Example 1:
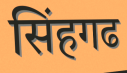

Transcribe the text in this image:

सिंहगढ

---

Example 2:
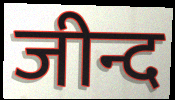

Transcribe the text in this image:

जीन्द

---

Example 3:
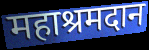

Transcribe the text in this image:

महाश्रमदान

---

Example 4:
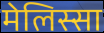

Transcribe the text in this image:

मेलिस्सा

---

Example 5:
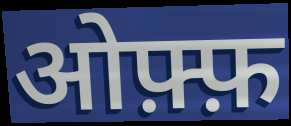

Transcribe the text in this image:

ओफ़्फ़